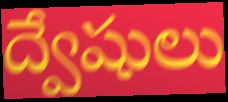
ద్వేషులు